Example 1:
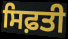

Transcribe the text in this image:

ਸਿਫ਼ਤੀ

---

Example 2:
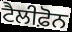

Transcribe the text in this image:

ਟੈਲੀਫ਼ੋਨ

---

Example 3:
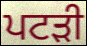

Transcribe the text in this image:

ਪਟੜੀ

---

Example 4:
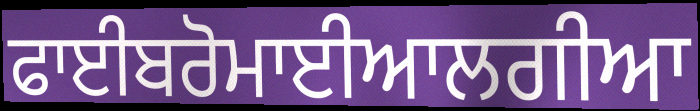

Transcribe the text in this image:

ਫਾਈਬਰੋਮਾਈਆਲਗੀਆ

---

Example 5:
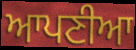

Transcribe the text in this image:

ਆਪਣੀਆ